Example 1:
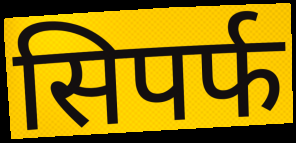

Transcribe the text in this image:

सिपर्फ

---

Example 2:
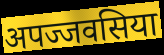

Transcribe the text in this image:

अपज्जवसिया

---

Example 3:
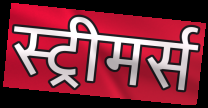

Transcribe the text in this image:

स्ट्रीमर्स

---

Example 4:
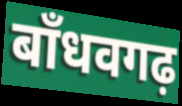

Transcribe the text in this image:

बाँधवगढ़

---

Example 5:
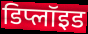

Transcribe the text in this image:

डिप्लॉइड